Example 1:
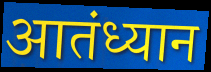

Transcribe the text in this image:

आतंध्यान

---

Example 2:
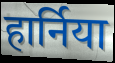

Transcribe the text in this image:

हार्निया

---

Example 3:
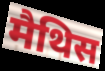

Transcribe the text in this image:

मैथिस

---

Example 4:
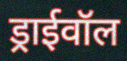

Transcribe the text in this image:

ड्राईवॉल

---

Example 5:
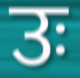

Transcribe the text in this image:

उः